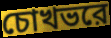
চোখভরে